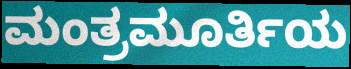
ಮಂತ್ರಮೂರ್ತಿಯ